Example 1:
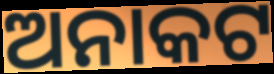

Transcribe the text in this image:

ଅନାକଟ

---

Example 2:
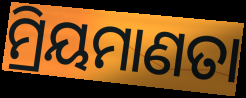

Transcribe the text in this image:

ମ୍ରିୟମାଣତା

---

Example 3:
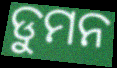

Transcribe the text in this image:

ଡୁମନ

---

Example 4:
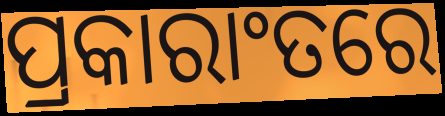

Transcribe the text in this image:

ପ୍ରକାରାଂତରେ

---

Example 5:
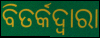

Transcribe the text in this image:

ବିତର୍କଦ୍ୱାରା